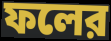
ফলের